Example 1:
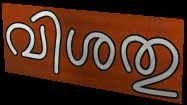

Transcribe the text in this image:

വിശതു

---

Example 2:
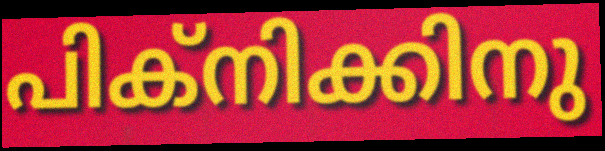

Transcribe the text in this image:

പിക്നിക്കിനു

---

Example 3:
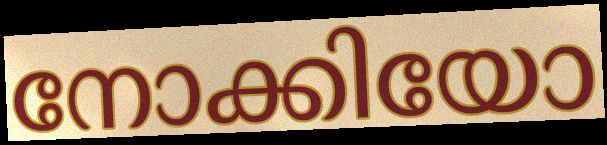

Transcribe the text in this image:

നോക്കിയോ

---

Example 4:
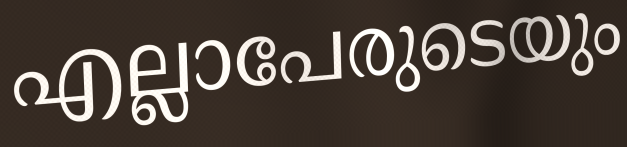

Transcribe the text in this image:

എല്ലാപേരുടെയും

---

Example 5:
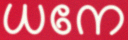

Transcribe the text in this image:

ധനേ